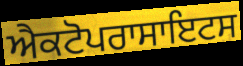
ਐਕਟੋਪਰਾਸਾਇਟਸ